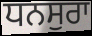
ਧਨਸੁਰਾ